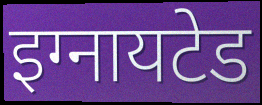
इग्नायटेड